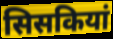
सिसकियां